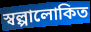
স্বল্পালোকিত